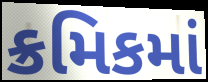
ક્રમિકમાં